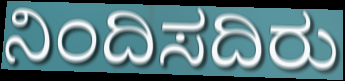
ನಿಂದಿಸದಿರು